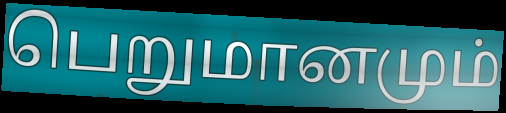
பெறுமானமும்